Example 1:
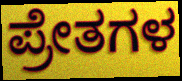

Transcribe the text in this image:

ಪ್ರೇತಗಳ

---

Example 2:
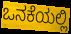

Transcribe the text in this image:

ಒನಕೆಯಲ್ಲಿ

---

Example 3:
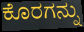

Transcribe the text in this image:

ಕೊರಗನ್ನು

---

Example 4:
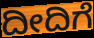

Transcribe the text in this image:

ದೀದಿಗೆ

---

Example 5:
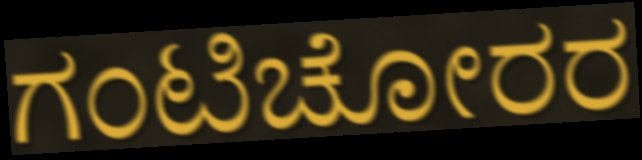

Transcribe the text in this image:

ಗಂಟಿಚೋರರ